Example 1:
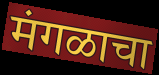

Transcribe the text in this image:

मंगळाचा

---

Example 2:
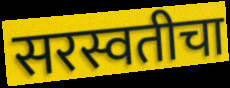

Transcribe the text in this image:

सरस्वतीचा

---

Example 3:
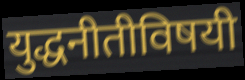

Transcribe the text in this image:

युद्धनीतीविषयी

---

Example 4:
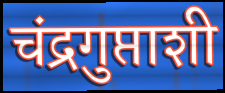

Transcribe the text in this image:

चंद्रगुप्ताशी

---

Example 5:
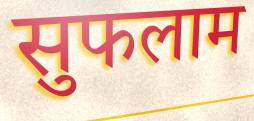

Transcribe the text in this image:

सुफलाम